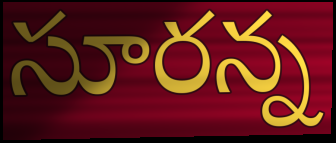
సూరన్న